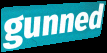
gunned